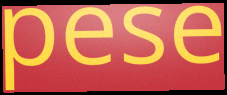
pese